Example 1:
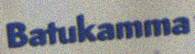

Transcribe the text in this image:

Batukamma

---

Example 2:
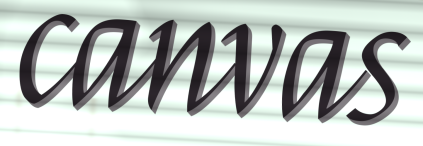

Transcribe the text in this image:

canvas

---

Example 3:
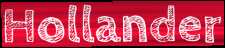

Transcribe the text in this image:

Hollander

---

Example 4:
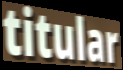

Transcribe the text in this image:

titular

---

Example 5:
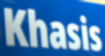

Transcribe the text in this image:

Khasis